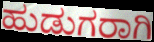
ಹುಡುಗರಾಗಿ